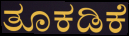
ತೂಕಡಿಕೆ